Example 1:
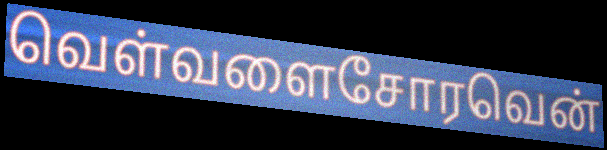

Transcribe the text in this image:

வெள்வளைசோரவென்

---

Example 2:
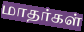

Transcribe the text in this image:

மாதர்கள்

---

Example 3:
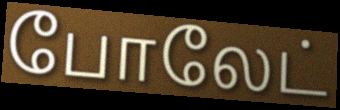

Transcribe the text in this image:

போலேட்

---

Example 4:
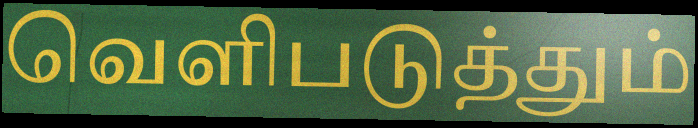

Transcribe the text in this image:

வெளிபடுத்தும்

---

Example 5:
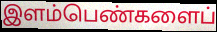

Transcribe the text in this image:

இளம்பெண்களைப்